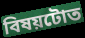
বিষয়টোত